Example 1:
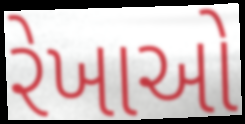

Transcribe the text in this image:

રેખાઓ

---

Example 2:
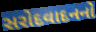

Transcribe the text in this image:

સરોદવાદનનો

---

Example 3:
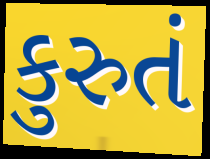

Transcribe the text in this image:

કુરુતં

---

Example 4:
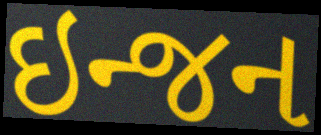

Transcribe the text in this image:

ઇન્જન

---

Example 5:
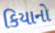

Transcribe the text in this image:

કિયાનો